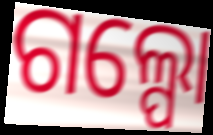
ଗଲ୍ପୋ